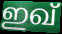
ഇഖ്